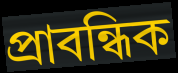
প্রাবন্ধিক